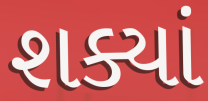
શક્યાં